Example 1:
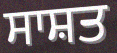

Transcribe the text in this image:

ਸਾਸ਼ਤ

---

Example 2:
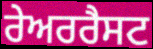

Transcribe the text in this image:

ਰੇਅਰਰੈਸਟ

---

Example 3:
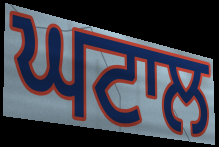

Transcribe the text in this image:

ਘਟਾਲ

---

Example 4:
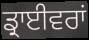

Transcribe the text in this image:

ਡ੍ਰਾਈਵਰਾਂ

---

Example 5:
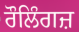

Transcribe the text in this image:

ਰੌਲਿੰਗਜ਼